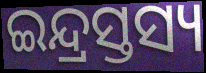
ଇନ୍ଦ୍ରସ୍ତସ୍ୟ